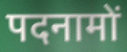
पदनामों